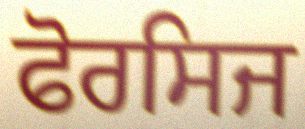
ਫੋਰਸਿਜ